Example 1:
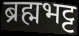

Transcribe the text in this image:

ब्रह्मभट्ट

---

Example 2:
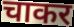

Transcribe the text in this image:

चाकर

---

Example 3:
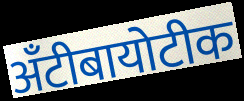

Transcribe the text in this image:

अँटीबायोटीक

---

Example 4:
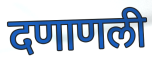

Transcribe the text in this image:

दणाणली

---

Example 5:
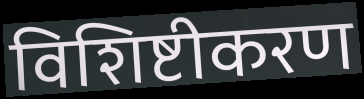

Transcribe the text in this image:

विशिष्टीकरण